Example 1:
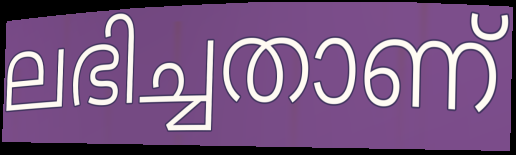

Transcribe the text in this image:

ലഭിച്ചതാണ്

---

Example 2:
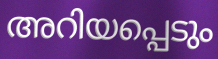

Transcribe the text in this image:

അറിയപ്പെടും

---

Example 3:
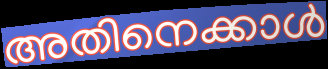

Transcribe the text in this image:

അതിനെക്കാൾ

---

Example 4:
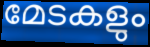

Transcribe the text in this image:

മേടകളും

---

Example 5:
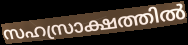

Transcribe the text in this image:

സഹസ്രാക്ഷത്തിൽ